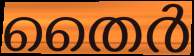
തൈർ